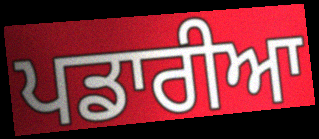
ਪਡਾਰੀਆ